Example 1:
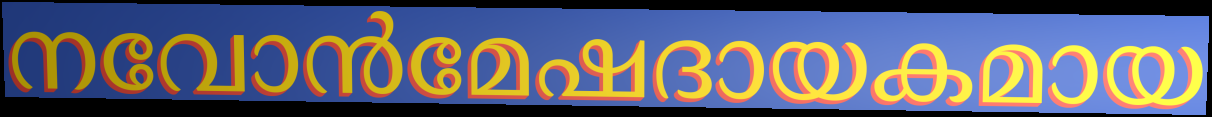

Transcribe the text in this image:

നവോൻമേഷദായകമായ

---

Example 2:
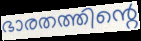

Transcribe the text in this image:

ഭാരതത്തിന്റെ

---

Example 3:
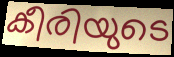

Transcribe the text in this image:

കീരിയുടെ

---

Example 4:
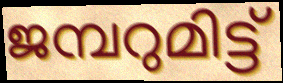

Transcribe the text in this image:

ജമ്പറുമിട്ട്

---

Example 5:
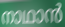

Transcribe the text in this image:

നാഥാൻ